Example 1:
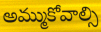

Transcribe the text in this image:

అమ్ముకోవాల్సి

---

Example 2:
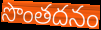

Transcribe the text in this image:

సొంతదనం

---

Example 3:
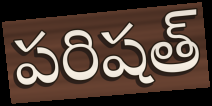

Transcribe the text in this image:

పరిషత్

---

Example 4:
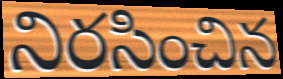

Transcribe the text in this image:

నిరసించిన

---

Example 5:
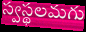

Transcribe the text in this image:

స్వస్థలమగు